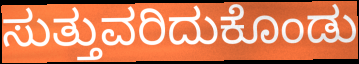
ಸುತ್ತುವರಿದುಕೊಂಡು